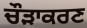
ਚੌੜਾਕਰਣ